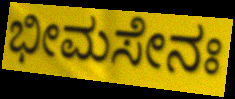
ಭೀಮಸೇನಃ